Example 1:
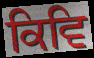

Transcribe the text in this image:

ਕਿਵਿ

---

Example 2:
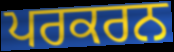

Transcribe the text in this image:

ਪਰਕਰਨ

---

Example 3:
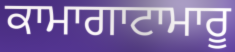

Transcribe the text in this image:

ਕਾਮਾਗਾਟਾਮਾਰੂ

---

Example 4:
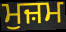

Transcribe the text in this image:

ਮੁਜ਼ਮ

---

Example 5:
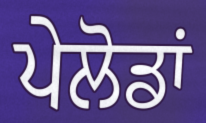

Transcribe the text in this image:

ਪੇਲੋਡਾਂ